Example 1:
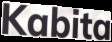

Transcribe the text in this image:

Kabita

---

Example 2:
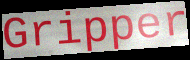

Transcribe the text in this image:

Gripper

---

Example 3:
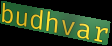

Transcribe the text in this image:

budhvar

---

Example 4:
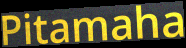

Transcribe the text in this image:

Pitamaha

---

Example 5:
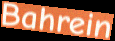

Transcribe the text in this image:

Bahrein